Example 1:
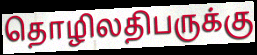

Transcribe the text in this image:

தொழிலதிபருக்கு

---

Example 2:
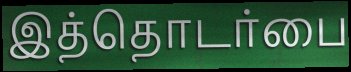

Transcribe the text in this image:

இத்தொடர்பை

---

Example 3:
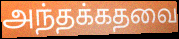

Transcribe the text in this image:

அந்தக்கதவை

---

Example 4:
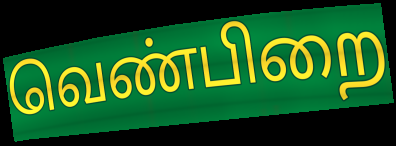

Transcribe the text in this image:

வெண்பிறை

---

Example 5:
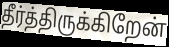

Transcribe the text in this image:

தீர்த்திருக்கிறேன்